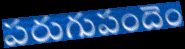
పరుగుపందెం